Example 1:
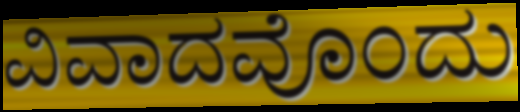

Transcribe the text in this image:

ವಿವಾದವೊಂದು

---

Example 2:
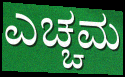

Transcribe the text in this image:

ಎಚ್ಚಮ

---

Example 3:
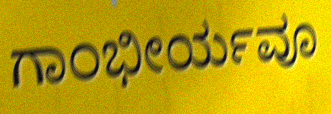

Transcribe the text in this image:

ಗಾಂಭೀರ್ಯವೂ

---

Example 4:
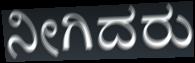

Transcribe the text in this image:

ನೀಗಿದರು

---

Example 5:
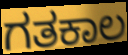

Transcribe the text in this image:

ಗತಕಾಲ